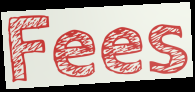
Fees